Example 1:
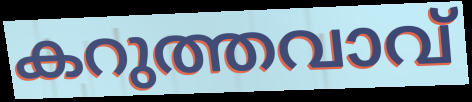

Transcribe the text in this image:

കറുത്തവാവ്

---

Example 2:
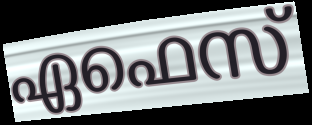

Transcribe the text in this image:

ഏഫെസ്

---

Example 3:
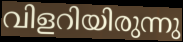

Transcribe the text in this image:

വിളറിയിരുന്നു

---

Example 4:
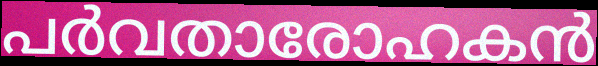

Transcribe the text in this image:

പർവതാരോഹകൻ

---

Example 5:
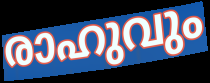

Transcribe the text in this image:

രാഹുവും